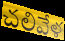
చలివేళ